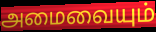
அமைவையும்